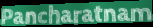
Pancharatnam